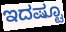
ಇದಷ್ಟೂ